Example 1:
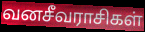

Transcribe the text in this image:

வனசீவராசிகள்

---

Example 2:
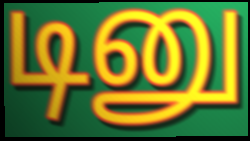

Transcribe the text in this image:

டினு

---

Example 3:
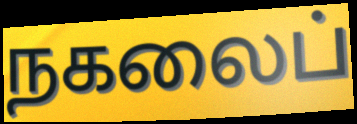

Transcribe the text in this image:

நகலைப்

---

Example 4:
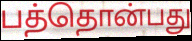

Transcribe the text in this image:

பத்தொன்பது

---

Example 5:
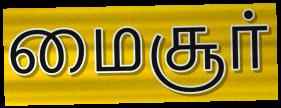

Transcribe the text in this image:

மைசூர்